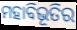
ମହାବିଭୂତିର